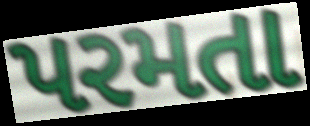
પરમતા